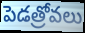
పెడత్రోవలు